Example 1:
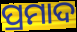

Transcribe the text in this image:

ପ୍ରମାଦ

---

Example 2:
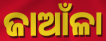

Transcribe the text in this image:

ଜାଆଁଳା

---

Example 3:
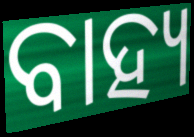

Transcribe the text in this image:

ବାହ୍ୟ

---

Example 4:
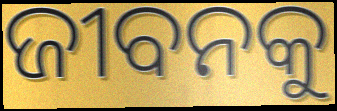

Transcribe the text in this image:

ଜୀବନକୁ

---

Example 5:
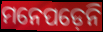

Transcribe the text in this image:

ମନେପଡ଼େନି